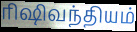
ரிஷிவந்தியம்